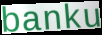
banku